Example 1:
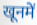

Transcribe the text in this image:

खूनमें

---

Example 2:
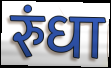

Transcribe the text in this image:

रुंधा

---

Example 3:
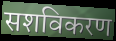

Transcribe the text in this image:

सशविकरण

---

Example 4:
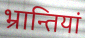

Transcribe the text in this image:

भ्रान्तियां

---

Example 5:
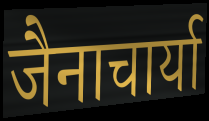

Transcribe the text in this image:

जैनाचार्या